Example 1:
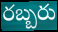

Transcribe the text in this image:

రబ్బరు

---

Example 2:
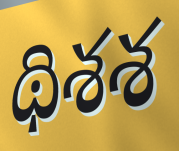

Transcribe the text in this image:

థిశశ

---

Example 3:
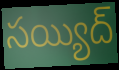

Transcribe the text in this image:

సయ్యిద్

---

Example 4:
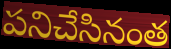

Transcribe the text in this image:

పనిచేసినంత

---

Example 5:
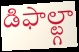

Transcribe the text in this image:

డిఫాల్ట్గా